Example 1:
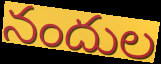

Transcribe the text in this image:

నందుల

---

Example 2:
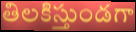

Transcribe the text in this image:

తిలకిస్తుండగా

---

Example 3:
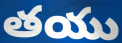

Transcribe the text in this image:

తయు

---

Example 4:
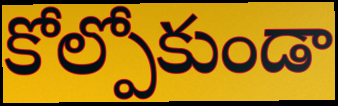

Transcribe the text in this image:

కోల్పోకుండా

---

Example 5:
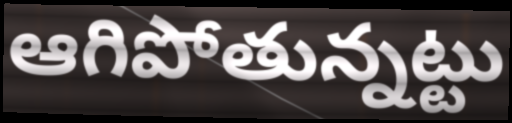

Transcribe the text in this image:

ఆగిపోతున్నట్టు